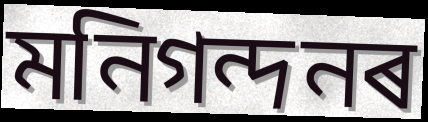
মনিগন্দনৰ